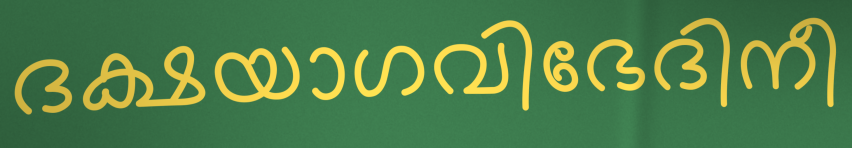
ദക്ഷയാഗവിഭേദിനീ